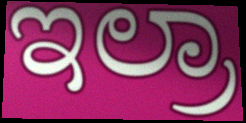
ಇಲ್ರಾ